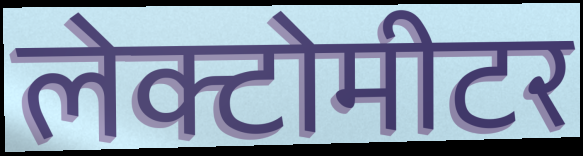
लेक्टोमीटर